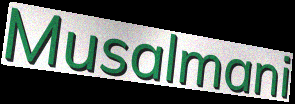
Musalmani